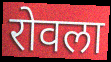
रोवला